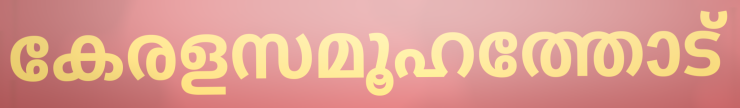
കേരളസമൂഹത്തോട്